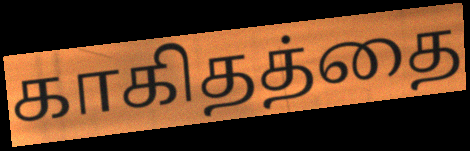
காகிதத்தை